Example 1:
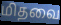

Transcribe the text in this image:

மிதவை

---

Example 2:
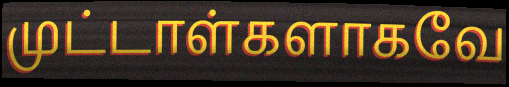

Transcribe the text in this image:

முட்டாள்களாகவே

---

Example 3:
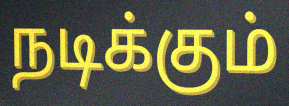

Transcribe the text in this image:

நடிக்கும்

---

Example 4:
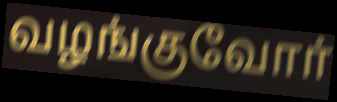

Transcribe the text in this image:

வழங்குவோர்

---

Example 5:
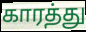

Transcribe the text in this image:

காரத்து